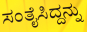
ಸಂತೈಸಿದ್ದನ್ನು